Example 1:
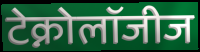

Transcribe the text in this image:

टेक्नोलॉजीज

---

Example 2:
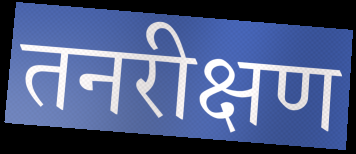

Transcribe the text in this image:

तनरीक्षण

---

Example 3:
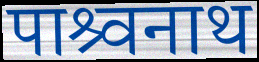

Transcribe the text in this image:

पाश्र्वनाथ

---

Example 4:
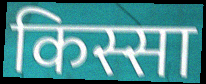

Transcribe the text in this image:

किस्सा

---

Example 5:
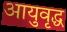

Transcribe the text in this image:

आयुवृद्ध